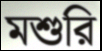
মশুরি